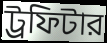
ট্রফিটার